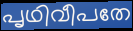
പൃഥിവീപതേ